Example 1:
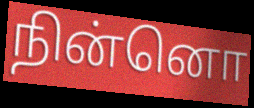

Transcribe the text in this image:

நின்னொ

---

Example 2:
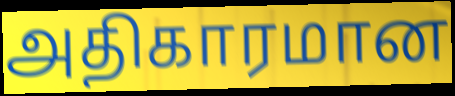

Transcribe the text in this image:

அதிகாரமான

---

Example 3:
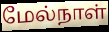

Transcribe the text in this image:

மேல்நாள்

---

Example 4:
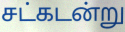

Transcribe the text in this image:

சட்கடன்று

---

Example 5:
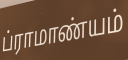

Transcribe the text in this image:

ப்ராமாண்யம்